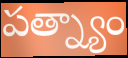
పత్న్యాం